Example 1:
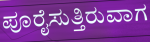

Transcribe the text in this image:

ಪೂರೈಸುತ್ತಿರುವಾಗ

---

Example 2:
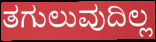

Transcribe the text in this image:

ತಗುಲುವುದಿಲ್ಲ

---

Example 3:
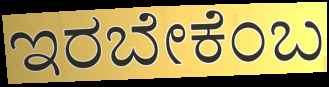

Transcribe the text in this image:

ಇರಬೇಕೆಂಬ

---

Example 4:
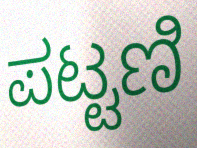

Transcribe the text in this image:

ಪಟ್ಟಣಿ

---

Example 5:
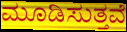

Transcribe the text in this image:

ಮೂಡಿಸುತ್ತವೆ